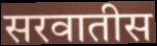
सरवातीस